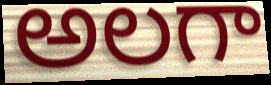
అలగా